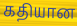
கதியான